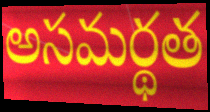
అసమర్థత